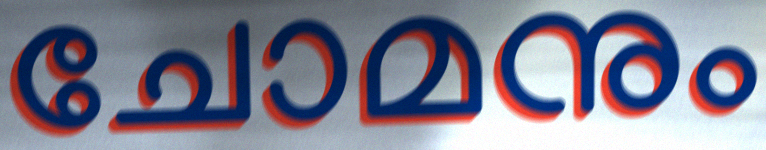
ചോമനും